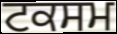
ਟਕਸਮ